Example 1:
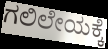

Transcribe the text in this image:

ಗಲಿಲೇಯಕ್ಕೆ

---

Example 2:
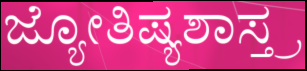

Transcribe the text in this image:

ಜ್ಯೋತಿಷ್ಯಶಾಸ್ತ್ರ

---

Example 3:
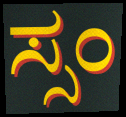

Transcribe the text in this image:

ಸ್ಸಂ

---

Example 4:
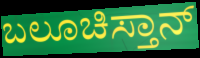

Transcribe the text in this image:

ಬಲೂಚಿಸ್ತಾನ್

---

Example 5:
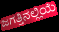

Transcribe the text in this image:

ಜಗತ್ತಿನಲ್ಲಿಯೆ